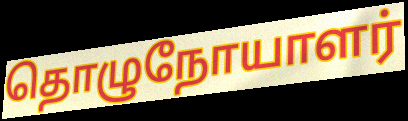
தொழுநோயாளர்